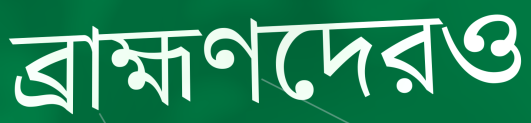
ব্রাহ্মণদেরও